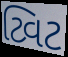
ટ્વિટ